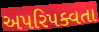
અપરિપક્વતા